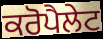
ਕਰੋਪੈਲੇਟ